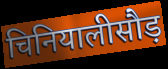
चिनियालीसौड़